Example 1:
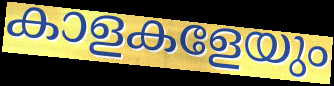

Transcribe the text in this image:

കാളകളേയും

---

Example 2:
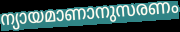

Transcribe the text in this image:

ന്യായമാണാനുസരണം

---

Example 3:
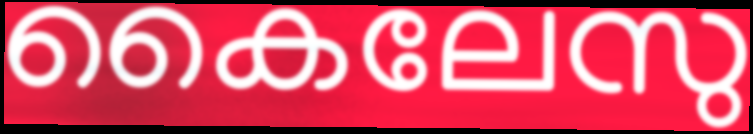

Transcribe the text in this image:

കൈലേസു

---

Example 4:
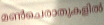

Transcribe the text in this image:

മൺചെരാതുകളിൽ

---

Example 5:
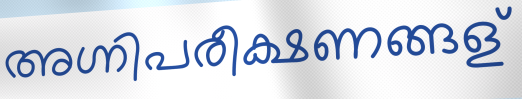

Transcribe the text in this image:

അഗ്നിപരീക്ഷണങ്ങള്